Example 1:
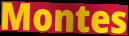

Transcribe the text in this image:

Montes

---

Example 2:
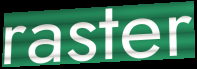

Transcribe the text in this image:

raster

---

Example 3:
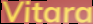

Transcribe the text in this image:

Vitara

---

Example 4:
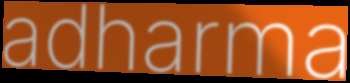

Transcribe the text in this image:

adharma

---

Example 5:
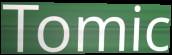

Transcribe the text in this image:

Tomic